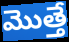
మొత్తే